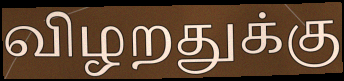
விழறதுக்கு